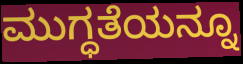
ಮುಗ್ಧತೆಯನ್ನೂ